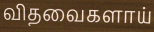
விதவைகளாய்